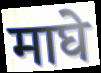
माघे